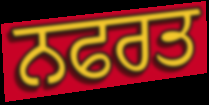
ਨਫਰਤ